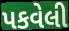
પકવેલી